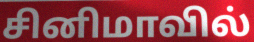
சினிமாவில்